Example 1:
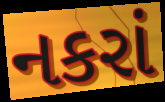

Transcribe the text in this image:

નકરાં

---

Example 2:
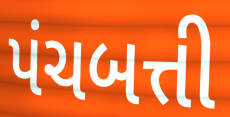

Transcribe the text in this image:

પંચબત્તી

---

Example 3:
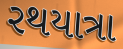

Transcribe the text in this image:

રથયાત્રા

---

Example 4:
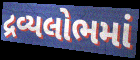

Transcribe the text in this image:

દ્રવ્યલોભમાં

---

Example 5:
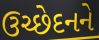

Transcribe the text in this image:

ઉચ્છેદનને